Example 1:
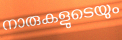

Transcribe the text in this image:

നാരുകളുടെയും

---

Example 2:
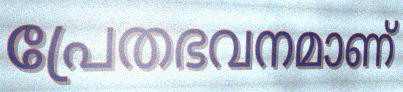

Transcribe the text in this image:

പ്രേതഭവനമാണ്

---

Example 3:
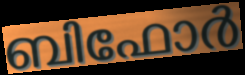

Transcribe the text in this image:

ബിഫോർ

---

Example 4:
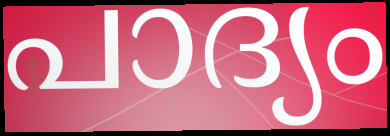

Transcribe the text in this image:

പാദ്യം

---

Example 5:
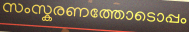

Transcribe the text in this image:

സംസ്കരണത്തോടൊപ്പം